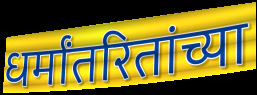
धर्मांतरितांच्या